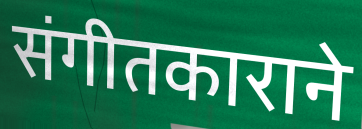
संगीतकाराने